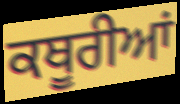
ਕਥੂਰੀਆਂ